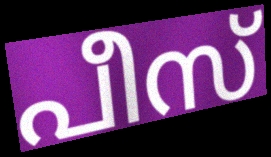
പീസ്